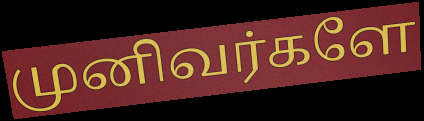
முனிவர்களே